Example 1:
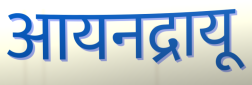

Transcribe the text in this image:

आयनद्रायू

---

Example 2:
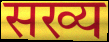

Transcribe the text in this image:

सख्य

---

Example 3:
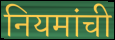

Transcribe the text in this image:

नियमांची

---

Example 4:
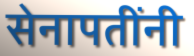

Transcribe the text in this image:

सेनापतींनी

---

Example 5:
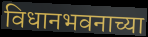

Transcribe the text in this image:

विधानभवनाच्या